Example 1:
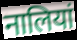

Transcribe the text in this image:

नालियां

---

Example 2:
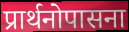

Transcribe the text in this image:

प्रार्थनोपासना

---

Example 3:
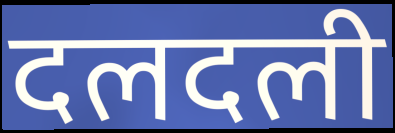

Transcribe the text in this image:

दलदली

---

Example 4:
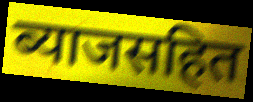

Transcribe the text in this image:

ब्याजसहित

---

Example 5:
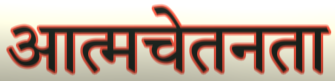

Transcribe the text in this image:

आत्मचेतनता